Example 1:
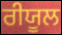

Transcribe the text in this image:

ਰੀਯੂਲ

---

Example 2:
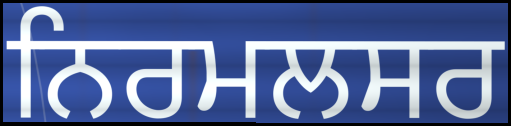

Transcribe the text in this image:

ਨਿਰਮਲਸਰ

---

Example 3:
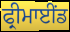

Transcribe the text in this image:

ਫ੍ਰੀਮਾਈਂਡ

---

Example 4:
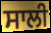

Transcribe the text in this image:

ਸਾਲੀ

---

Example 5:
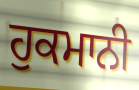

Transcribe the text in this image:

ਹੁਕਮਾਨੀ